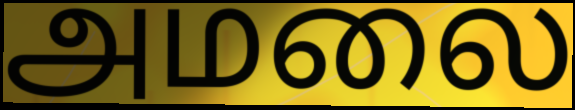
அமலை